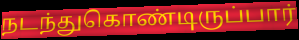
நடந்துகொண்டிருப்பார்